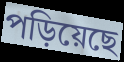
পড়িয়েছে